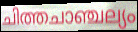
ചിത്തചാഞ്ചല്യം